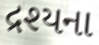
દ્રશ્યના